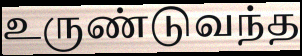
உருண்டுவந்த